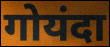
गोयंदा